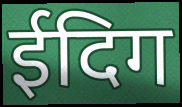
ईदिग